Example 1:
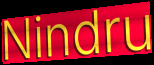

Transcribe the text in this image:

Nindru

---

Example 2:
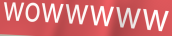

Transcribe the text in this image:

wowwwww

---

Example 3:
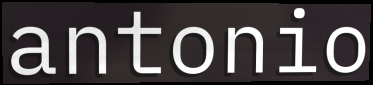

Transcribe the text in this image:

antonio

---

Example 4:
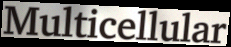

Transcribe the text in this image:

Multicellular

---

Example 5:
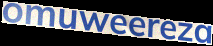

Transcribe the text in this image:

omuweereza